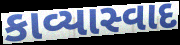
કાવ્યાસ્વાદ